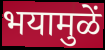
भयामुळें